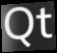
Qt